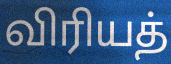
விரியத்